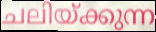
ചലിയ്ക്കുന്ന